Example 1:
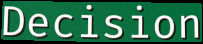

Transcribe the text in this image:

Decision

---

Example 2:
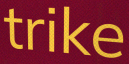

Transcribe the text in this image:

trike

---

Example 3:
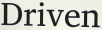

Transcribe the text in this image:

Driven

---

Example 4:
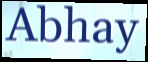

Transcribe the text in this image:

Abhay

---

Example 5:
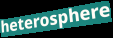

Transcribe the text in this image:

heterosphere